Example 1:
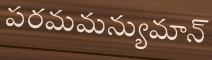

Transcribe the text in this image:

పరమమన్యుమాన్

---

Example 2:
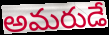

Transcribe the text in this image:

అమరుడే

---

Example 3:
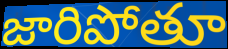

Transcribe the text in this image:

జారిపోతూ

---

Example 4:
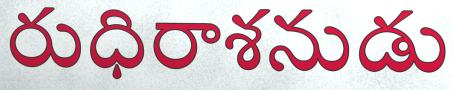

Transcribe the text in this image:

రుధిరాశనుడు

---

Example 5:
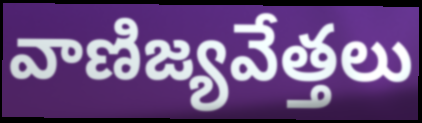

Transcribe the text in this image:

వాణిజ్యవేత్తలు